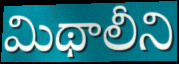
మిథాలీని